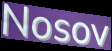
Nosov